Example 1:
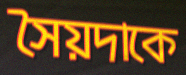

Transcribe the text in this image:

সৈয়দাকে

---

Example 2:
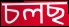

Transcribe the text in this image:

চলছ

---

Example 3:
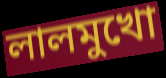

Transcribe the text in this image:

লালমুখো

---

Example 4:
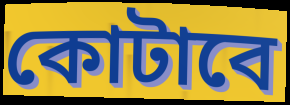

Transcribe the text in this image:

কোটাবে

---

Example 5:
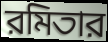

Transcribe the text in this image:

রমিতার